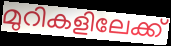
മുറികളിലേക്ക്